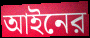
আইনের